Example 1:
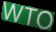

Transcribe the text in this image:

WTO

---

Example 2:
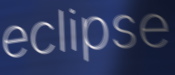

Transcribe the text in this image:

eclipse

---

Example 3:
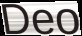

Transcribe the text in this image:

Deo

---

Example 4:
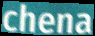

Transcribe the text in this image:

chena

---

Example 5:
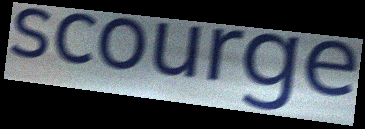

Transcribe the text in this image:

scourge